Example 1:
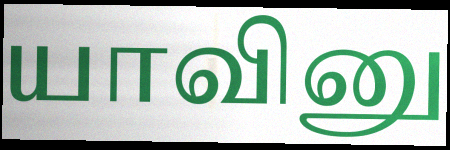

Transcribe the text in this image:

யாவினு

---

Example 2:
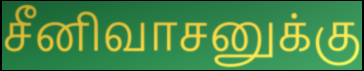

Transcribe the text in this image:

சீனிவாசனுக்கு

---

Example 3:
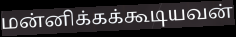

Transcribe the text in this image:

மன்னிக்கக்கூடியவன்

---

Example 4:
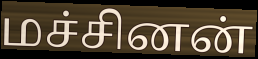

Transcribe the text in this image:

மச்சினன்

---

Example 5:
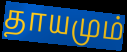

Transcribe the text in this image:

தாயமும்